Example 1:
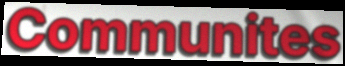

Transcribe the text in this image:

Communites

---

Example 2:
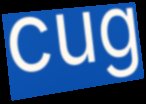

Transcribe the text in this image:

cug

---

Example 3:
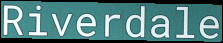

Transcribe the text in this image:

Riverdale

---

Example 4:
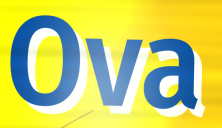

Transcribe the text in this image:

Ova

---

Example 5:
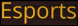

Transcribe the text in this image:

Esports